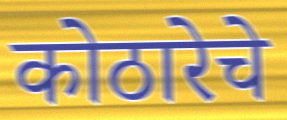
कोठारेचे